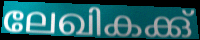
ലേഖികക്കു്